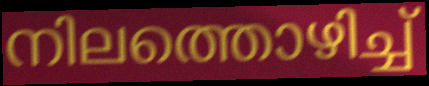
നിലത്തൊഴിച്ച്